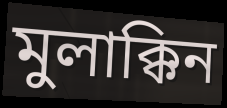
মুলাক্কিন